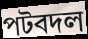
পটবদল